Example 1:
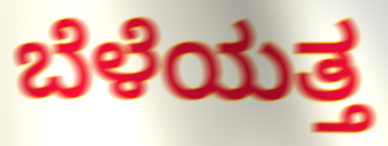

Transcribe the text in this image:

ಬೆಳೆಯತ್ತ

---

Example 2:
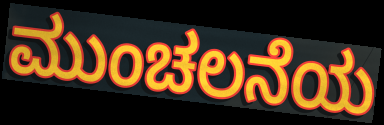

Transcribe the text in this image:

ಮುಂಚಲನೆಯ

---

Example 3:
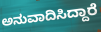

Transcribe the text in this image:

ಅನುವಾದಿಸಿದ್ದಾರೆ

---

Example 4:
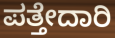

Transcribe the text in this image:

ಪತ್ತೇದಾರಿ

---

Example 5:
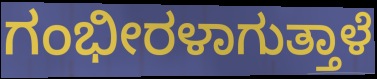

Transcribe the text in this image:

ಗಂಭೀರಳಾಗುತ್ತಾಳೆ